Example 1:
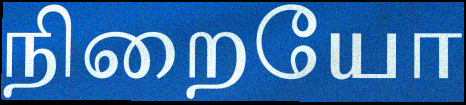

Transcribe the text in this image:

நிறையோ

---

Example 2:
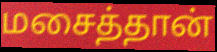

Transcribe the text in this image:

மசைத்தான்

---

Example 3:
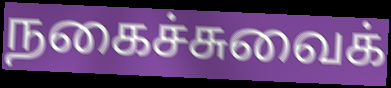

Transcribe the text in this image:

நகைச்சுவைக்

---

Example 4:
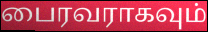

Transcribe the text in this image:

பைரவராகவும்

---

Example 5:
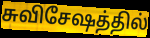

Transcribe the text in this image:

சுவிசேஷத்தில்